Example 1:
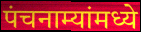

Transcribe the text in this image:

पंचनाम्यांमध्ये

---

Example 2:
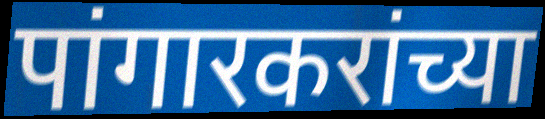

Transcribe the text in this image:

पांगारकरांच्या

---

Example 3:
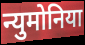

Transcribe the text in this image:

न्युमोनिया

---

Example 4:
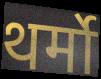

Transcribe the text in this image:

थर्मो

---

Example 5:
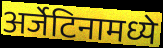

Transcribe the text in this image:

अर्जेटिनामध्ये